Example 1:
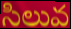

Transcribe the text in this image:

సిలువ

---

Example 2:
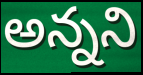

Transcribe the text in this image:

అన్నని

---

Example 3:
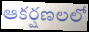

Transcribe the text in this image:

ఆకర్షణలలో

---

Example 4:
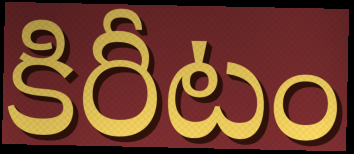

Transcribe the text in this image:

కిరీటం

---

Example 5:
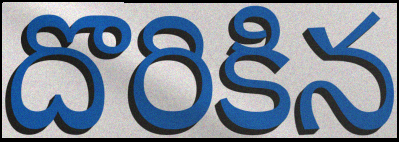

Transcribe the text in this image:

దొరికిన